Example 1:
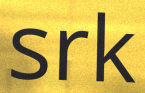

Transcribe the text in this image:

srk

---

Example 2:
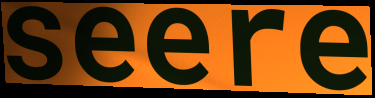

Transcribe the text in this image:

seere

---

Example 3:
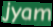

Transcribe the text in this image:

jyam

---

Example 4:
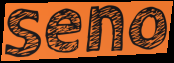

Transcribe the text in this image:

seno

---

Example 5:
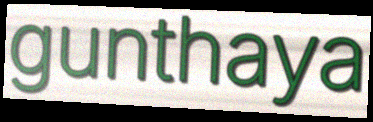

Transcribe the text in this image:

gunthaya